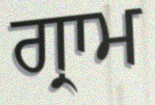
ਗ੍ਰਾਮ